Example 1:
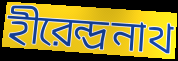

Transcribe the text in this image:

হীরেন্দ্রনাথ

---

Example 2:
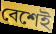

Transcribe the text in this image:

বেশেই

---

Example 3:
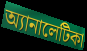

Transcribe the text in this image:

অ্যানালেটিকা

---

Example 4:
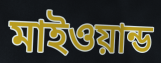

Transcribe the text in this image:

মাইওয়ান্ড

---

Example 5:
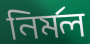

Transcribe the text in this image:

নির্মল